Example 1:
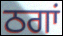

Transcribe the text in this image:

ਠਗਾਂ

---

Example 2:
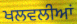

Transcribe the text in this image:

ਖਲਵਲੀਆਂ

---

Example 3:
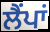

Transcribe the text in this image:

ਲੈਂਪਾਂ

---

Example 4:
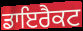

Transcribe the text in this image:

ਡਾਇਰੈਕਟ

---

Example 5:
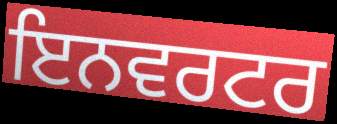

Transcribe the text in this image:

ਇਨਵਰਟਰ